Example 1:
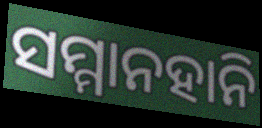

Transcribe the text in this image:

ସମ୍ମାନହାନି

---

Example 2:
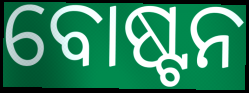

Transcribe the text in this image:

ବୋଷ୍ଟନ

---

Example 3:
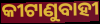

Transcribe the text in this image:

କୀଟାଣୁବାହୀ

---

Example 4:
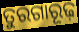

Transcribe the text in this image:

ତୁରଗାରୂଢ଼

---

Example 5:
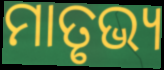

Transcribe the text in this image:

ମାତୃଭ୍ୟ